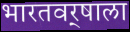
भारतवर्षाला